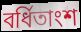
বর্ধিতাংশ